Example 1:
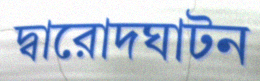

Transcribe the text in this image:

দ্বারোদঘাটন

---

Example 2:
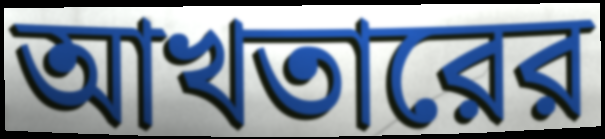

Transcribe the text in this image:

আখতারের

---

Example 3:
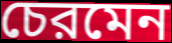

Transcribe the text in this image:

চেরমেন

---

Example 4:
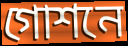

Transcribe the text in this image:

গোশনে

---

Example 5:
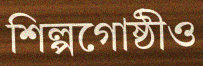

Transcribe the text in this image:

শিল্পগোষ্ঠীও